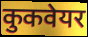
कुकवेयर